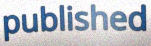
published